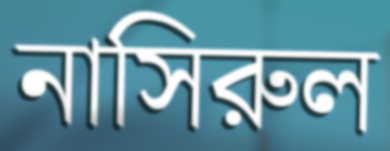
নাসিরুল